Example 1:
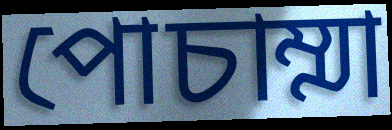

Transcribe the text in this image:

পোচাম্মা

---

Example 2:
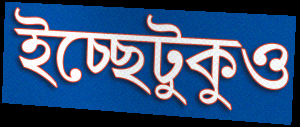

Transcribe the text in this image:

ইচ্ছেটুকুও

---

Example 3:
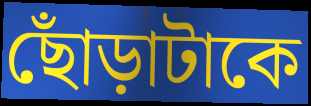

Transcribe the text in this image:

ছোঁড়াটাকে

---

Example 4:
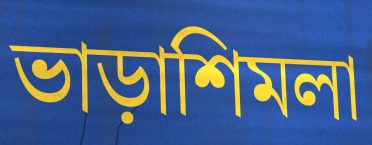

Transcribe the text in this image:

ভাড়াশিমলা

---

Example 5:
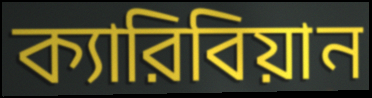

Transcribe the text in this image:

ক্যারিবিয়ান